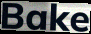
Bake